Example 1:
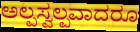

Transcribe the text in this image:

ಅಲ್ಪಸ್ವಲ್ಪವಾದರೂ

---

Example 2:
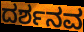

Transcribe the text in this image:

ದರ್ಶನವ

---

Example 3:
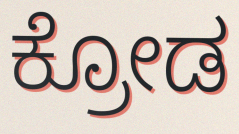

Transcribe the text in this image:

ಕ್ರೋಡ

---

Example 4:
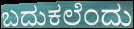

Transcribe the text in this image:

ಬದುಕಲೆಂದು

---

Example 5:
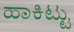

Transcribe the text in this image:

ಹಾಕಿಟ್ಟು